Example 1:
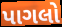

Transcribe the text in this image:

પાગલો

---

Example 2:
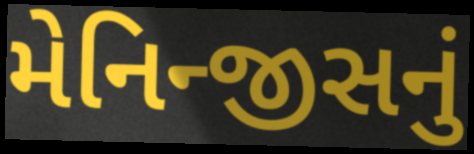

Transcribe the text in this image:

મેનિન્જીસનું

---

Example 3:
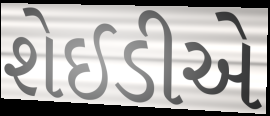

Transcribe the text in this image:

શેઈડીએ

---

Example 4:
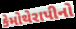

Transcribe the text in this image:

કેમોથેરાપીનો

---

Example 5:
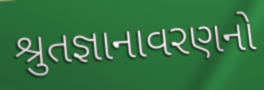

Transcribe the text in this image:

શ્રુતજ્ઞાનાવરણનો